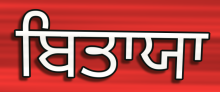
ਬਿਤਾਯਾ